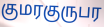
குமரகுருபர